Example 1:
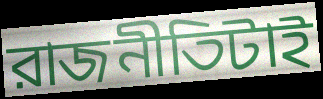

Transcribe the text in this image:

রাজনীতিটাই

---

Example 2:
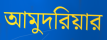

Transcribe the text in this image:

আমুদরিয়ার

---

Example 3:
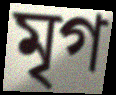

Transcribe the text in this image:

মৃগ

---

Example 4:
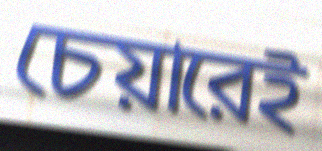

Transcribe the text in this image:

চেয়ারেই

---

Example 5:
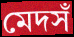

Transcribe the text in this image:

মেদসঁ